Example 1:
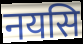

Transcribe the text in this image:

नयसि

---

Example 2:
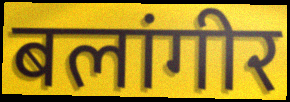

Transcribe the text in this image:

बलांगीर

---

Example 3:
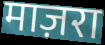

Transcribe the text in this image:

माज़रा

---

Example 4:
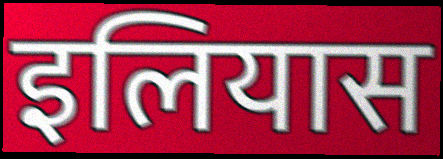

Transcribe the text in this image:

इलियास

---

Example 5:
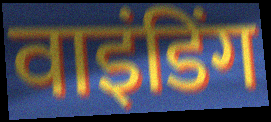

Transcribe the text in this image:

वाइंडिंग